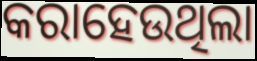
କରାହେଉଥିଲା